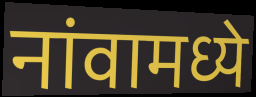
नांवामध्ये